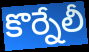
కొర్నేలీ